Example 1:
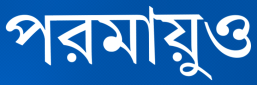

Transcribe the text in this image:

পরমায়ুও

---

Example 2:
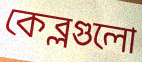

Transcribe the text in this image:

কেব্লগুলো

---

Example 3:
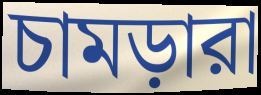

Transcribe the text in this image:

চামড়ারা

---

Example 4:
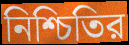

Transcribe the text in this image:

নিশ্চিতির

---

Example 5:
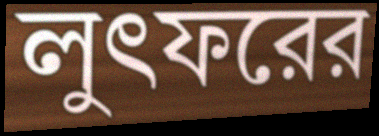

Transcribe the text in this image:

লুৎফরের